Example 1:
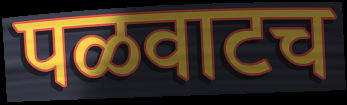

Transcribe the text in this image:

पळवाटच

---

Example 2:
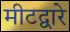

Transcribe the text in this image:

मीटद्वारे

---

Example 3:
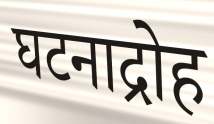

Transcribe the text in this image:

घटनाद्रोह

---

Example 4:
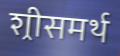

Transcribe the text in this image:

श्रीसमर्थ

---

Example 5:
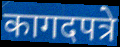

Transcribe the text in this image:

कागदपत्रे